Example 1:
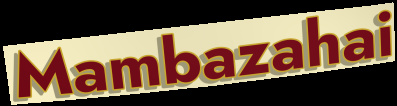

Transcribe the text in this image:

Mambazahai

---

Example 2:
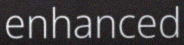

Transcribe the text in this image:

enhanced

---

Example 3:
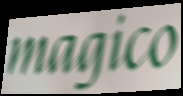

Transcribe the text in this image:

magico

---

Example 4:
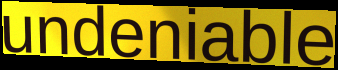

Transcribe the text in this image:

undeniable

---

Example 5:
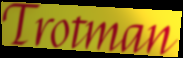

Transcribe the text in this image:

Trotman